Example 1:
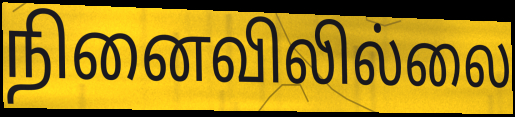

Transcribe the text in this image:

நினைவிலில்லை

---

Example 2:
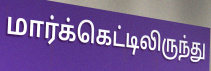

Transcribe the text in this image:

மார்க்கெட்டிலிருந்து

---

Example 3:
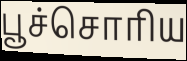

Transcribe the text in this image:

பூச்சொரிய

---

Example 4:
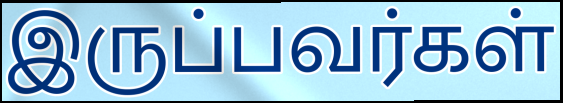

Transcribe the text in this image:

இருப்பவர்கள்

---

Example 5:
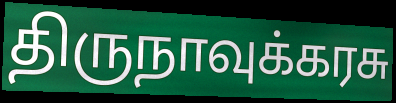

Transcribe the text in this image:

திருநாவுக்கரசு